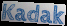
Kadak